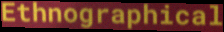
Ethnographical